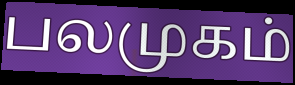
பலமுகம்